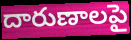
దారుణాలపై